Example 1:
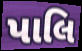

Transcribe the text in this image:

પાલિ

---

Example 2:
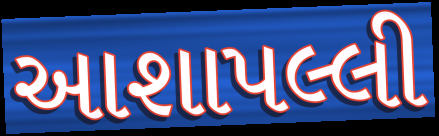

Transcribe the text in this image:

આશાપલ્લી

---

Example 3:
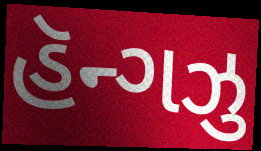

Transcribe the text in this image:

હૅન્ગઝુ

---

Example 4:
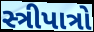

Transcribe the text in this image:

સ્ત્રીપાત્રો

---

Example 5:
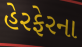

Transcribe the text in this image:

હેરફેરના